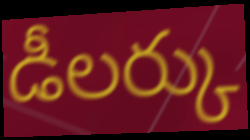
డీలర్కు